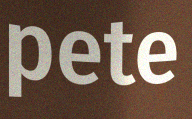
pete